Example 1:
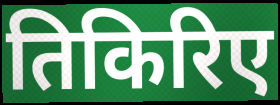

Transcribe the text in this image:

तिकिरिए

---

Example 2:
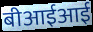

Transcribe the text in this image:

बीआईआई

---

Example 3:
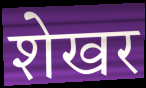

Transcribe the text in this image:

शेखर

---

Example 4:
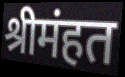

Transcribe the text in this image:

श्रीमंहत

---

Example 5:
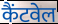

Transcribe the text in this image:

कैंटवेल